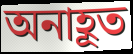
অনাহূত